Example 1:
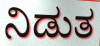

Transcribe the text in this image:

ನಿಡುತ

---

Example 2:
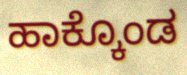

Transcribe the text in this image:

ಹಾಕ್ಕೊಂಡ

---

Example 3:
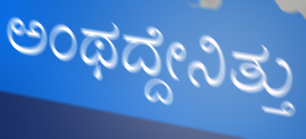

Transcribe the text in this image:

ಅಂಥದ್ದೇನಿತ್ತು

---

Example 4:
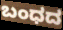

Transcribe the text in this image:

ಬಂಧದ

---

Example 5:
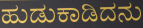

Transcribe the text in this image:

ಹುಡುಕಾಡಿದನು